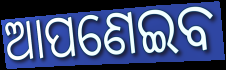
ଆପଣେଇବ